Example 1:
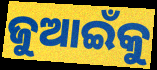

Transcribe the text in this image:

ଜୁଆଇଁକୁ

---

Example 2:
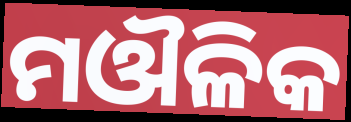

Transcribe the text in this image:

ମଔଳିକ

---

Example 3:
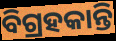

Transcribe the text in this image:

ବିଗ୍ରହକାନ୍ତି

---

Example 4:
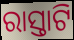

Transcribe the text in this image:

ରାସ୍ତାଟି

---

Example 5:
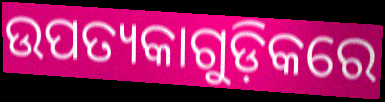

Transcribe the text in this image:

ଉପତ୍ୟକାଗୁଡ଼ିକରେ